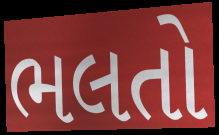
ભલતો